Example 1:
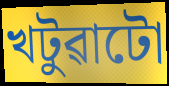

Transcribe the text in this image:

খটুৱাটো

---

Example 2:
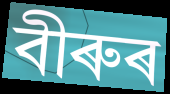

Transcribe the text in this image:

বীৰুৰ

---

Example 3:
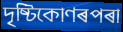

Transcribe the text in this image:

দৃষ্টিকোণৰপৰা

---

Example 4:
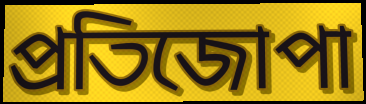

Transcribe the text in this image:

প্ৰতিজোপা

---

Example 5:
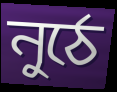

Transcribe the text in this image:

নুঠে